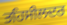
ਤਹਿਸੀਲਦਰ